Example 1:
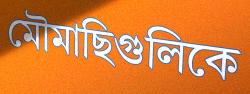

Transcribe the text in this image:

মৌমাছিগুলিকে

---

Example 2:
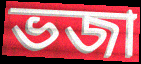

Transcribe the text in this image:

ভজা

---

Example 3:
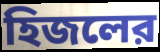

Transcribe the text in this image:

হিজলের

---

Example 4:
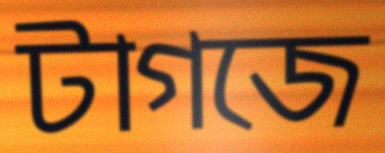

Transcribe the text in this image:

টাগজে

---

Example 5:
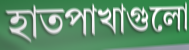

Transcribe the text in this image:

হাতপাখাগুলো